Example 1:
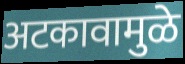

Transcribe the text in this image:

अटकावामुळे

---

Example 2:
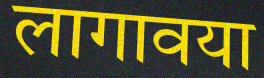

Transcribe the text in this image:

लागावया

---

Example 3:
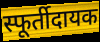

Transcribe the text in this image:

स्फूर्तीदायक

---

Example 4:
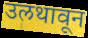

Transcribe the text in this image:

उलथावून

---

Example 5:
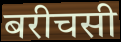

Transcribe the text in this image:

बरीचसी